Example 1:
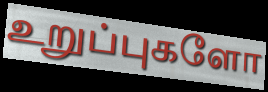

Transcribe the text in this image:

உறுப்புகளோ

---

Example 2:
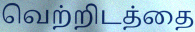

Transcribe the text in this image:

வெற்றிடத்தை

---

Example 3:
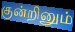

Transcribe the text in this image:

குன்றினும்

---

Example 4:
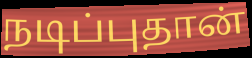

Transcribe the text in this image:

நடிப்புதான்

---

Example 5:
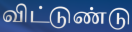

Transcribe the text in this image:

விட்டுண்டு